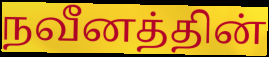
நவீனத்தின்